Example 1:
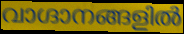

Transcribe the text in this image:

വാഗ്ദാനങ്ങളിൽ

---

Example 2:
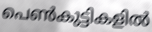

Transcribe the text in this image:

പെൺകുട്ടികളിൽ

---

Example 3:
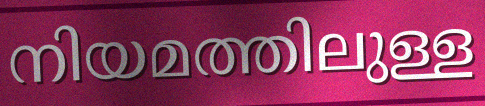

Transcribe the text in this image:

നിയമത്തിലുള്ള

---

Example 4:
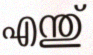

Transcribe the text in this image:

എന്തു്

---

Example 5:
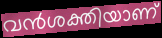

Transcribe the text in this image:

വൻശക്തിയാണ്